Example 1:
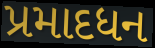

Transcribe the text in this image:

પ્રમાદધન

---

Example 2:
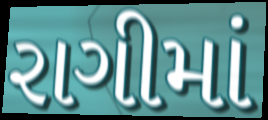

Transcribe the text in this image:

રાગીમાં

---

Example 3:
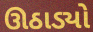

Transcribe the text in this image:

ઊઠાડ્યો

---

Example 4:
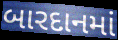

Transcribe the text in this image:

બારદાનમાં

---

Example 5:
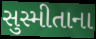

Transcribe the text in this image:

સુસ્મીતાના